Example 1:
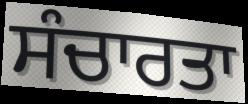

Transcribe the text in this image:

ਸੰਚਾਰਤਾ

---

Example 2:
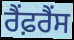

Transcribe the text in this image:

ਰੈਂਫ਼ਰੈਂਸ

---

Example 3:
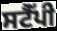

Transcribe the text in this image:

ਸਟੈੱਪੀ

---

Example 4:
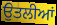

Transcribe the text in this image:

ਉਤਲੀਆਂ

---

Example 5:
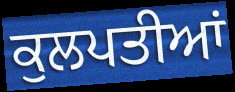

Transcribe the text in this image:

ਕੁਲਪਤੀਆਂ